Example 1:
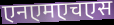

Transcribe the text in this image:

एनएमएचएस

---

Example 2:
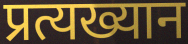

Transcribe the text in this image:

प्रत्यख्यान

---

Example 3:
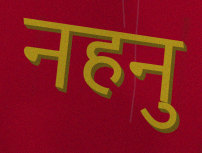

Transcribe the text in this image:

नहनु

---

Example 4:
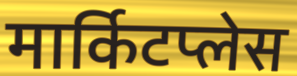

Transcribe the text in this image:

मार्किटप्लेस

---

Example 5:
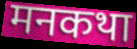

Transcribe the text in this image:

मनकथा